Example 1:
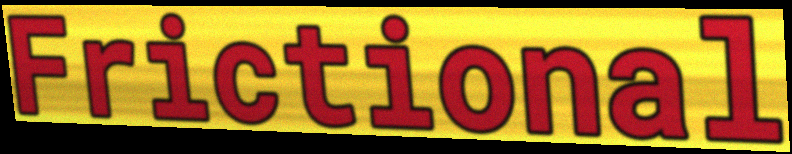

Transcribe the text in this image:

Frictional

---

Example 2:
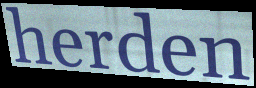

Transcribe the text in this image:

herden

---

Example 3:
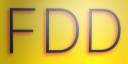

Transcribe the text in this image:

FDD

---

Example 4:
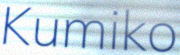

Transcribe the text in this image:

Kumiko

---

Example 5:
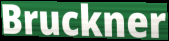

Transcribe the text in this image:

Bruckner